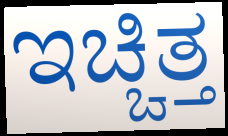
ಇಚ್ಚಿತ್ತ